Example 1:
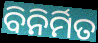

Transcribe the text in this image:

ବିନିର୍ମିତ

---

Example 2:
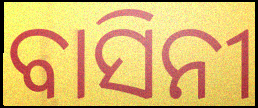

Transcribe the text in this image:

ବାସିନୀ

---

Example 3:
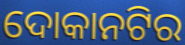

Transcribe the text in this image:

ଦୋକାନଟିର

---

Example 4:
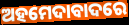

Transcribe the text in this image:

ଅହମେଦାବାଦରେ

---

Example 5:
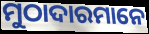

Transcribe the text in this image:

ମୁଠାଦାରମାନେ